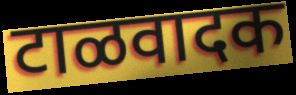
टाळवादक